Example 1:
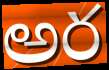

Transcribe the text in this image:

అర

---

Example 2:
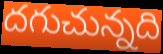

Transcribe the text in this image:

దగుచున్నది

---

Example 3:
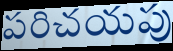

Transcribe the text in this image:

పరిచయపు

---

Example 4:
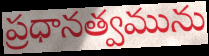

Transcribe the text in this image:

ప్రధానత్వమును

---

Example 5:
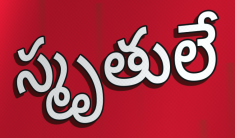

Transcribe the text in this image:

స్మృతులే